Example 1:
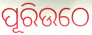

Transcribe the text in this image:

ପୂରିଉଠେ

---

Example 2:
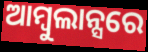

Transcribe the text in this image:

ଆମ୍ବୁଲାନ୍ସରେ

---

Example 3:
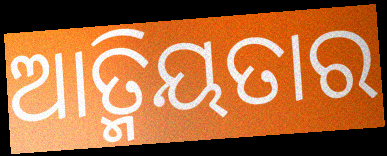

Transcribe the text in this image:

ଆତ୍ମିୟତାର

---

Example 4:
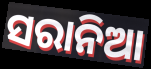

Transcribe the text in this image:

ସରାନିଆ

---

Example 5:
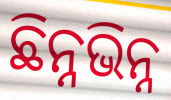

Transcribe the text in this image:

ଛିନ୍ନଭିନ୍ନ